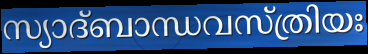
സ്യാദ്ബാന്ധവസ്ത്രിയഃ